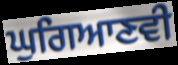
ਘੁਗਿਆਣਵੀ